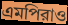
এমপিরাও